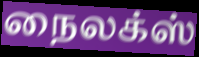
நைலக்ஸ்